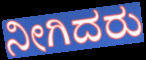
ನೀಗಿದರು